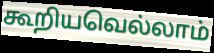
கூறியவெல்லாம்